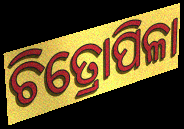
ଚିତ୍ରୋପିଳା